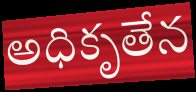
అధికృతేన